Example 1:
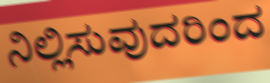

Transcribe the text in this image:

ನಿಲ್ಲಿಸುವುದರಿಂದ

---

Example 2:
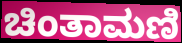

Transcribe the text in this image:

ಚಿಂತಾಮಣಿ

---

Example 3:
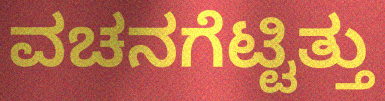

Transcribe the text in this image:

ವಚನಗೆಟ್ಟಿತ್ತು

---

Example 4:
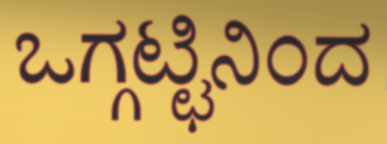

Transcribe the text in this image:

ಒಗ್ಗಟ್ಟಿನಿಂದ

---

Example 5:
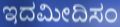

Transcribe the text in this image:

ಇದಮೀದಿಸಂ